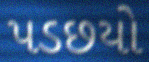
પડછયો